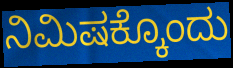
ನಿಮಿಷಕ್ಕೊಂದು